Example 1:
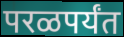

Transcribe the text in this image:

परळपर्यंत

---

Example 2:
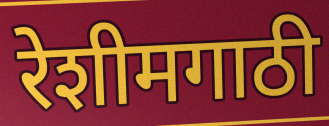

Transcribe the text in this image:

रेशीमगाठी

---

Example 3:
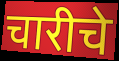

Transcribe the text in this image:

चारीचे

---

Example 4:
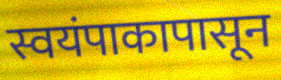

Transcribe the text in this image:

स्वयंपाकापासून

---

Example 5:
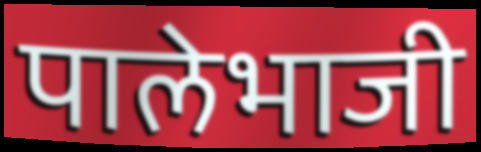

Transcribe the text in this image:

पालेभाजी